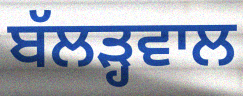
ਬੱਲੜ੍ਹਵਾਲ